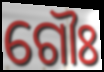
ଗୌଃ